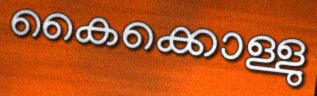
കൈക്കൊള്ളു